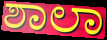
ಶಾಲಾ